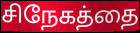
சிநேகத்தை